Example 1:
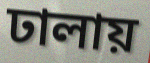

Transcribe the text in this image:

ঢালায়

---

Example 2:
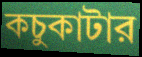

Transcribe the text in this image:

কচুকাটার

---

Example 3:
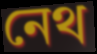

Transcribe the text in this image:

নেথ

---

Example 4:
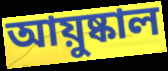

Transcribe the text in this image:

আয়ুষ্কাল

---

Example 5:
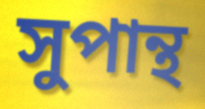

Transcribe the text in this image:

সুপান্থ